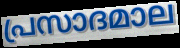
പ്രസാദമാല